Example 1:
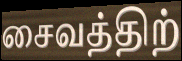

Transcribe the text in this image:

சைவத்திற்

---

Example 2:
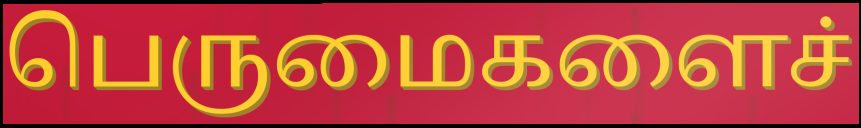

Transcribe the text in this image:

பெருமைகளைச்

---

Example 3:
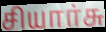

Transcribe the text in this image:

சியார்சு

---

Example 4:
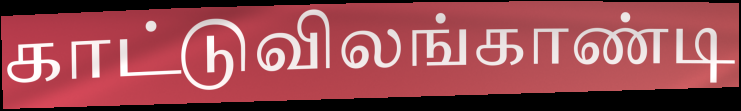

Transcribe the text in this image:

காட்டுவிலங்காண்டி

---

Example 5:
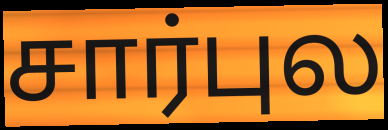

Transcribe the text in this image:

சார்புல